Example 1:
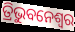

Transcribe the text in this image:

ତ୍ରିଭୁବନେଶ୍ବର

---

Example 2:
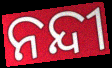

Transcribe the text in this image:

ନନ୍ଦୀ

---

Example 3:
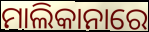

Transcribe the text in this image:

ମାଲିକାନାରେ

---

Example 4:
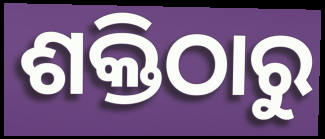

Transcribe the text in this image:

ଶକ୍ତିଠାରୁ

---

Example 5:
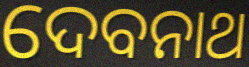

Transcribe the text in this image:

ଦେବନାଥ